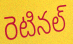
రెటినల్